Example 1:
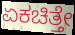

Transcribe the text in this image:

ಏಕಚಿತ್ತೇ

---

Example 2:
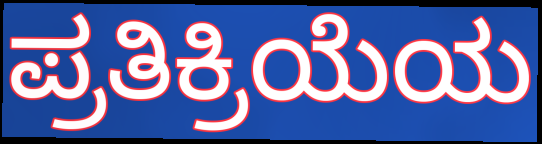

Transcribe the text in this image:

ಪ್ರತಿಕ್ರಿಯೆಯ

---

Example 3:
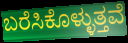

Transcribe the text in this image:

ಬರೆಸಿಕೊಳ್ಳುತ್ತವೆ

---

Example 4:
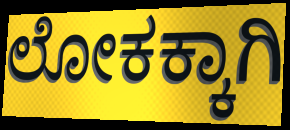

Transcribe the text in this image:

ಲೋಕಕ್ಕಾಗಿ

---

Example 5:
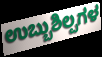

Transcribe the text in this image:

ಉಬ್ಬುಶಿಲ್ಪಗಳ